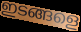
ഇടങ്ങളെ